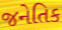
જનેતિક